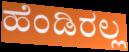
ಹೆಂಡಿರಲ್ಲ